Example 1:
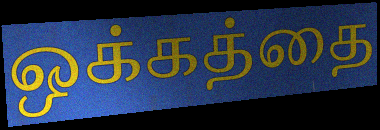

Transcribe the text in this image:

ஒக்கத்தை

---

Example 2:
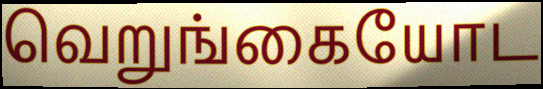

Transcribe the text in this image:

வெறுங்கையோட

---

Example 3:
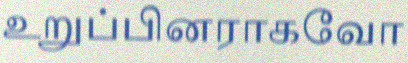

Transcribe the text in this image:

உறுப்பினராகவோ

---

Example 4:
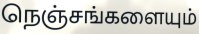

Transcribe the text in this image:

நெஞ்சங்களையும்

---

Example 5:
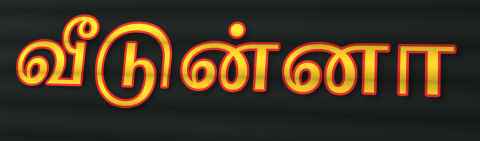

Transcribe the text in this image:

வீடுன்னா